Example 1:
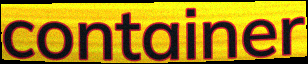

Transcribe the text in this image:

container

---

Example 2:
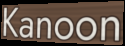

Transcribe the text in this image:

Kanoon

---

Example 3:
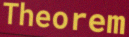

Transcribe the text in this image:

Theorem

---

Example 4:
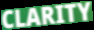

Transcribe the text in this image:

CLARITY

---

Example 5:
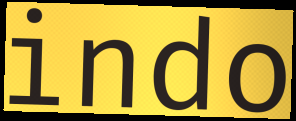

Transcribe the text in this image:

indo